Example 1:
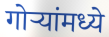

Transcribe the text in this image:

गोऱ्यांमध्ये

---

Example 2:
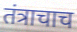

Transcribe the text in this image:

तंत्राचाच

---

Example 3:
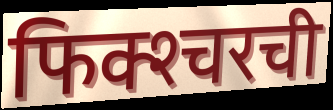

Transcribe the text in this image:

फिक्श्चरची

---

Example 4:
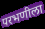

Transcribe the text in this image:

परभणीला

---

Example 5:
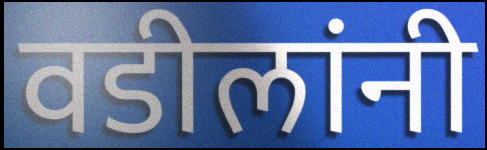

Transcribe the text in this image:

वडीलांनी